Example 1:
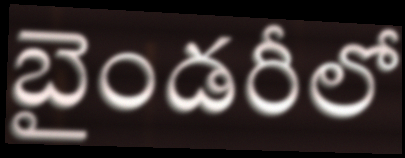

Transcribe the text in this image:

బైండరీలో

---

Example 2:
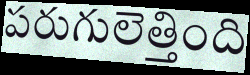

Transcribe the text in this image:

పరుగులెత్తింది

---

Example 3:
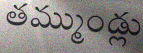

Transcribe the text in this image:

తమ్ముండ్లు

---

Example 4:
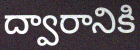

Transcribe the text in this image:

ద్వారానికి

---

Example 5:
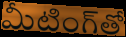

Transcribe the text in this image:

మీటింగ్‌తో